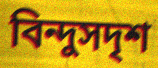
বিন্দুসদৃশ